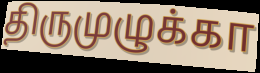
திருமுழுக்கா